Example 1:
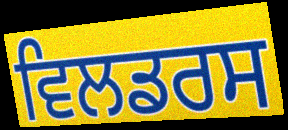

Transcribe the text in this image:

ਵਿਲਡਰਸ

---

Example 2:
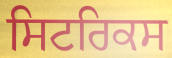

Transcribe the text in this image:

ਸਿਟਰਿਕਸ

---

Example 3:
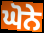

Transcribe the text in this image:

ਘੋਨੇ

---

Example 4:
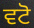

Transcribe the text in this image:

ਵਟੋ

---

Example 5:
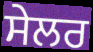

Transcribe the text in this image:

ਸੇਲਰ